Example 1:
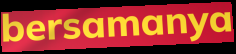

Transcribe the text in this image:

bersamanya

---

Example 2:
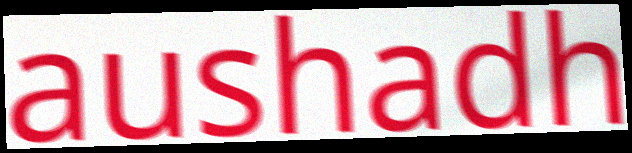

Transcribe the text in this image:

aushadh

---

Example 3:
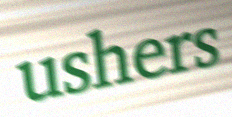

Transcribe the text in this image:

ushers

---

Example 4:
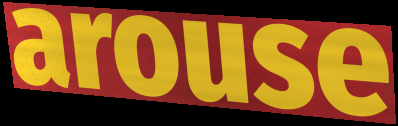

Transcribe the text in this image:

arouse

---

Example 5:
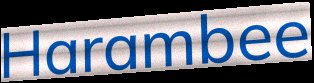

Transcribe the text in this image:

Harambee